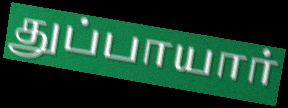
துப்பாயார்